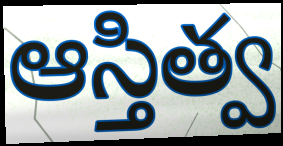
ఆస్తిత్వ